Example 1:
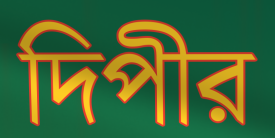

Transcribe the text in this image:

দিপীর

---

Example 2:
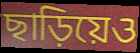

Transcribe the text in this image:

ছাড়িয়েও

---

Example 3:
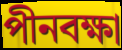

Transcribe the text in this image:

পীনবক্ষা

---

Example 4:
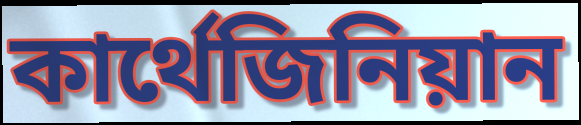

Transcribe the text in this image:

কার্থেজিনিয়ান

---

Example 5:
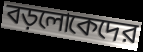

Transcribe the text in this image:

বড়লোকেদের